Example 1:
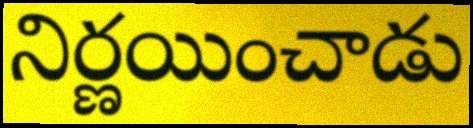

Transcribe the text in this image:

నిర్ణయించాడు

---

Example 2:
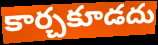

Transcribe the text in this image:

కార్చకూడదు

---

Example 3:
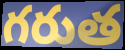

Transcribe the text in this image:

గరుత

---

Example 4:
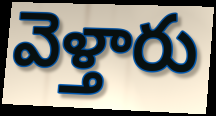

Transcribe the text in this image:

వెళ్తారు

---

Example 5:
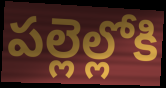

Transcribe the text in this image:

పల్లెల్లోకి